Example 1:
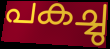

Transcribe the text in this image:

പകച്ചു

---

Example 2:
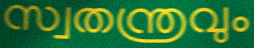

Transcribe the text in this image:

സ്വതന്ത്രവും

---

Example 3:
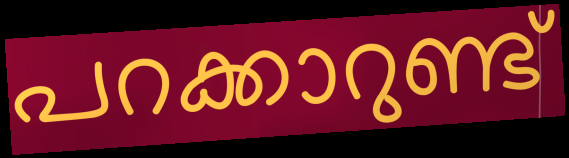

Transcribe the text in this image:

പറക്കാറുണ്ട്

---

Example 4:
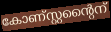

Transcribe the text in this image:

കോണ്സ്റ്റന്റൈന്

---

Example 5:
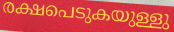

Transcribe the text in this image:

രക്ഷപെടുകയുള്ളു